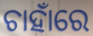
ଚାହାଁରେ